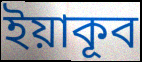
ইয়াকূব